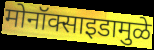
मोनॉक्साइडामुळे